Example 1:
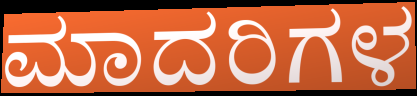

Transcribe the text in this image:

ಮಾದರಿಗಳ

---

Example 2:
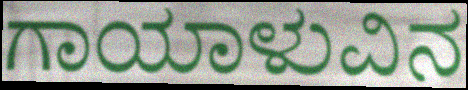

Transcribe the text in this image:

ಗಾಯಾಳುವಿನ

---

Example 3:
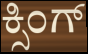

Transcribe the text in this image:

ಕ್ಸಿಂಗ್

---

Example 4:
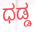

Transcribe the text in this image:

ಧಡ್ಡ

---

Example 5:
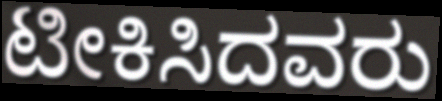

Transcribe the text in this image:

ಟೀಕಿಸಿದವರು